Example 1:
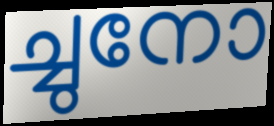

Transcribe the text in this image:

ച്ചുനോ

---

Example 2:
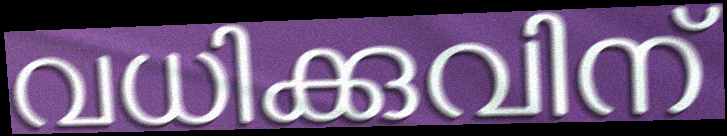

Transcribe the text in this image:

വധിക്കുവിന്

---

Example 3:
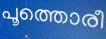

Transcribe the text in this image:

പൂത്തൊരീ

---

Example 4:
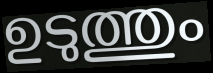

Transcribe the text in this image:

ഉടുത്തും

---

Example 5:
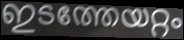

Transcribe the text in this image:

ഇടത്തേയറ്റം